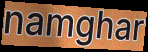
namghar